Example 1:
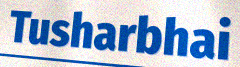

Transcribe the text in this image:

Tusharbhai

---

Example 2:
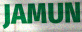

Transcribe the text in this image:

JAMUN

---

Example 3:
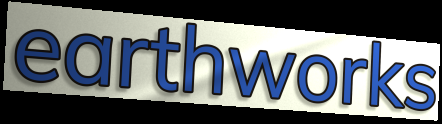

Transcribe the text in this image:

earthworks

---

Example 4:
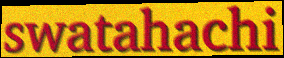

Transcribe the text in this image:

swatahachi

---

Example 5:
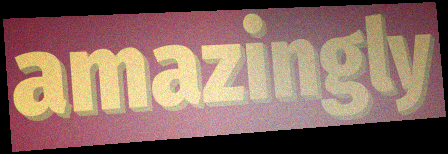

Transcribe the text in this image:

amazingly